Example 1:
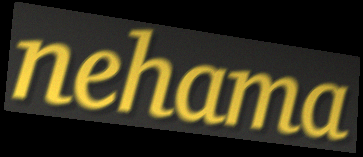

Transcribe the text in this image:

nehama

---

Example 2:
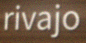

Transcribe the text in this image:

rivajo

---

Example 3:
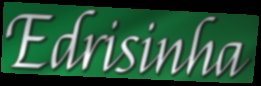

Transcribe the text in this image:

Edrisinha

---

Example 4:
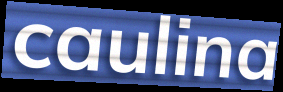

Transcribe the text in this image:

caulina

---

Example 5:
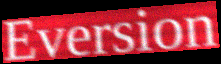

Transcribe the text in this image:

Eversion